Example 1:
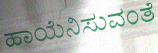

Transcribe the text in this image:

ಹಾಯೆನಿಸುವಂತೆ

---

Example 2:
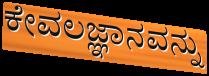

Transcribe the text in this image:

ಕೇವಲಜ್ಞಾನವನ್ನು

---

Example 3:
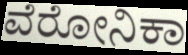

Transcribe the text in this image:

ವೆರೋನಿಕಾ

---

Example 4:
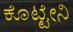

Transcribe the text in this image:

ಕೊಟ್ಟೇನಿ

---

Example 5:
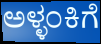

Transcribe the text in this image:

ಅಳ್ಳಂಕಿಗೆ